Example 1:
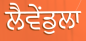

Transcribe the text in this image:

ਲੈਵੇਂਡੁਲਾ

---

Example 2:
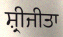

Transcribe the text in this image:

ਸ਼੍ਰੀਜੀਤਾ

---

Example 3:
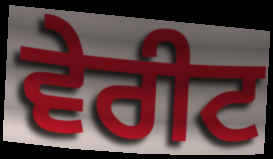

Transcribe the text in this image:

ਵੇਰੀਟ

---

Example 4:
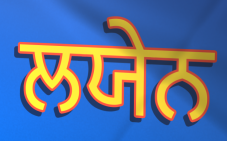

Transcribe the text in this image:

ਲਯੇਨ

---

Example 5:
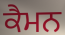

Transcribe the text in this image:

ਕੈਮਨ